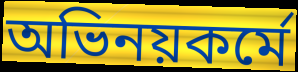
অভিনয়কর্মে